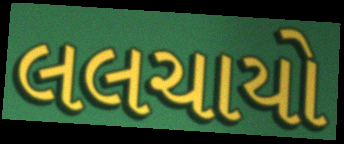
લલચાયો